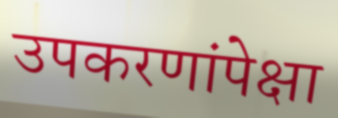
उपकरणांपेक्षा